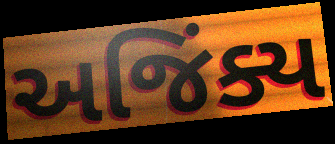
અજિંક્ય